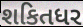
શકિતધર